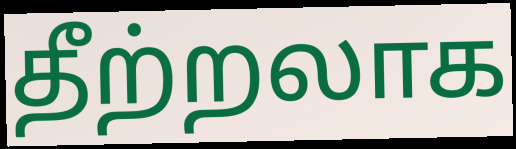
தீற்றலாக